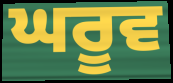
ਘਰੂਵ